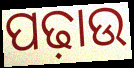
ପଢ଼ାଉ